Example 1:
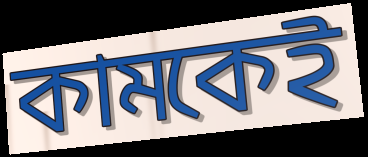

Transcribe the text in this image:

কামকেই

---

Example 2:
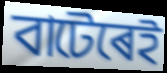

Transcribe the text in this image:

বাটেৰেই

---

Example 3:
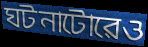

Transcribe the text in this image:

ঘটনাটোৱেও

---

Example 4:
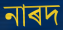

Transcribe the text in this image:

নাৰদ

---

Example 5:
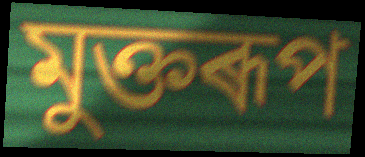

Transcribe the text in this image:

মুক্তৰূপ